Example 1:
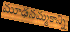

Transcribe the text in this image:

మూఢనమ్మకాన్ని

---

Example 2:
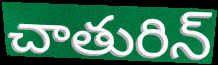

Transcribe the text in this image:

చాతురిన్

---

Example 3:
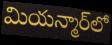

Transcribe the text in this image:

మియన్మార్‌లో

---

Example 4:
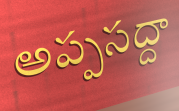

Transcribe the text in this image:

అప్పసద్దా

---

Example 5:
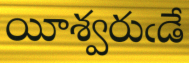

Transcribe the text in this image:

యీశ్వరుఁడే